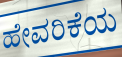
ಹೇವರಿಕೆಯ